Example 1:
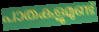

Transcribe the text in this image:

പാതകളുമുണ്ട്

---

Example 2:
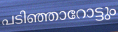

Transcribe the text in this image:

പടിഞ്ഞാറോട്ടും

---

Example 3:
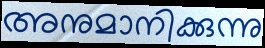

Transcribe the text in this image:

അനുമാനിക്കുന്നു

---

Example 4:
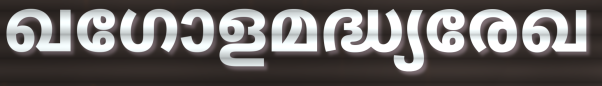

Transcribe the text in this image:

ഖഗോളമദ്ധ്യരേഖ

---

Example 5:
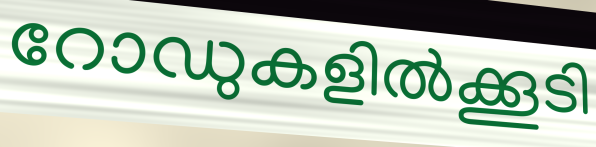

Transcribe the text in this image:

റോഡുകളിൽക്കൂടി